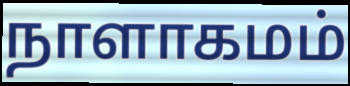
நாளாகமம்